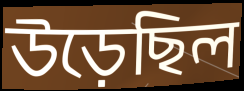
উড়েছিল